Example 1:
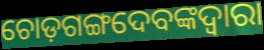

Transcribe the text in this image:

ଚୋଡ଼ଗଙ୍ଗଦେବଙ୍କଦ୍ୱାରା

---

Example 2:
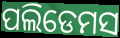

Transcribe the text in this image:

ପଲିଡେମସ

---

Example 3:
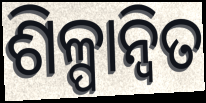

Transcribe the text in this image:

ଶିଳ୍ପାନ୍ବିତ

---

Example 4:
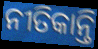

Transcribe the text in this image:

ନୀତିକାନ୍ତି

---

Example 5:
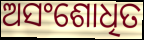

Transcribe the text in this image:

ଅସଂଶୋଧିତ